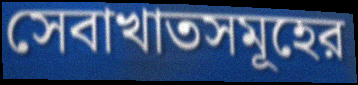
সেবাখাতসমূহের